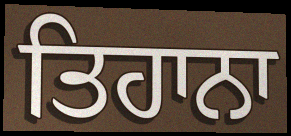
ਤਿਹਾਨਾ